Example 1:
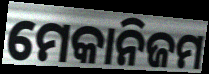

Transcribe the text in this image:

ମେକାନିଜମ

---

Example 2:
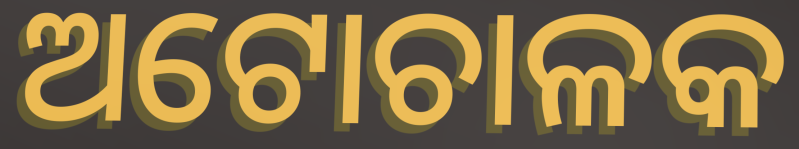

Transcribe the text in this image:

ଅଟୋଚାଳକ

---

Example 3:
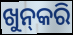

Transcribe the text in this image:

ଖୁନ୍‍କରି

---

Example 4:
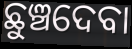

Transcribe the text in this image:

ଛୁଞ୍ଚଦେବା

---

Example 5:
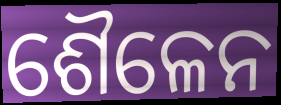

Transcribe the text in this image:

ଶୈଳେନ